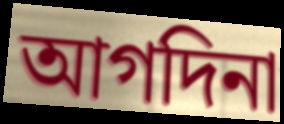
আগদিনা